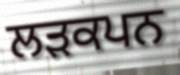
ਲੜਕਪਨ